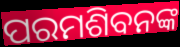
ପରମଶିବନଙ୍କ